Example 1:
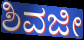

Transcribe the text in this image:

ಶಿವಜೀ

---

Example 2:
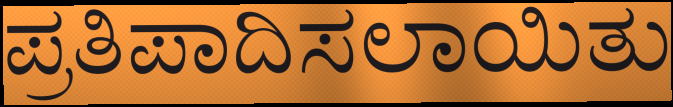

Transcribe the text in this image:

ಪ್ರತಿಪಾದಿಸಲಾಯಿತು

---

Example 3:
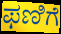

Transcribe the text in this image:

ಫಣಿಗೆ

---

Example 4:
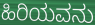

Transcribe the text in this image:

ಹಿರಿಯವನು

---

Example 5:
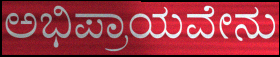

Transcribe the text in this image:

ಅಭಿಪ್ರಾಯವೇನು